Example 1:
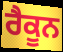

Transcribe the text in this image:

ਰੈਕੂਨ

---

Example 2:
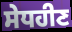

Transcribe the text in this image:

ਸੇਧਹੀਣ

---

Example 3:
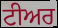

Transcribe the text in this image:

ਟੀਅਰ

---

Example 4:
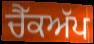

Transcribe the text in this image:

ਚੈੱਕਅੱਪ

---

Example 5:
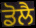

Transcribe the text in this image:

ਡੋਲੈ